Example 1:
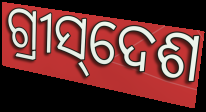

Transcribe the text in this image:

ଗ୍ରୀସ୍‌ଦେଶ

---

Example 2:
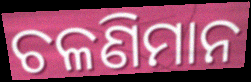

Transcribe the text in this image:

ଚଳଣିମାନ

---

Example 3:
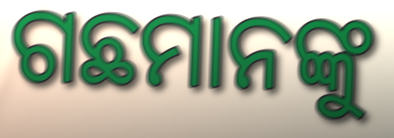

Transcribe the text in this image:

ଗଛମାନଙ୍କୁ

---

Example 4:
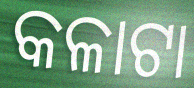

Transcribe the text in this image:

କଳାଟା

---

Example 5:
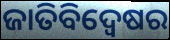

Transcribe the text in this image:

ଜାତିବିଦ୍ୱେଷର